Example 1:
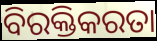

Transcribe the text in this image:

ବିରକ୍ତିକରତା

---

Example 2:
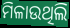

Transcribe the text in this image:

ମିଳାଉଥିଲି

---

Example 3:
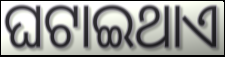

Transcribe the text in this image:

ଘଟାଇଥାଏ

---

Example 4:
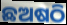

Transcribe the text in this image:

ଛଅଷଠି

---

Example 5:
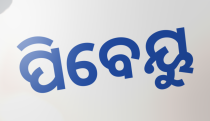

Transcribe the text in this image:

ପିବେୟୁ